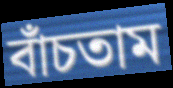
বাঁচতাম